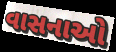
વાસનાઓ